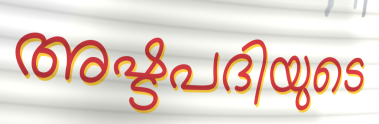
അഷ്ടപദിയുടെ